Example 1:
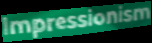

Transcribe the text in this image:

Impressionism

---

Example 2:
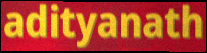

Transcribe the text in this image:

adityanath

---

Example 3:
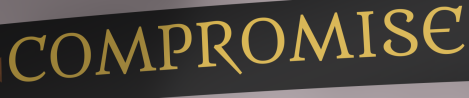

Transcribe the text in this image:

COMPROMISE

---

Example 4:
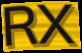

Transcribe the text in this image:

RX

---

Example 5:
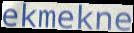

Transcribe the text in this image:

ekmekne